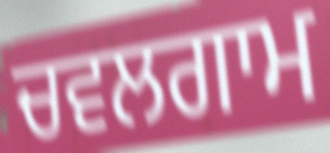
ਚਵਲਗਾਮ